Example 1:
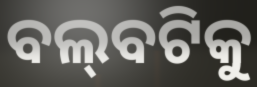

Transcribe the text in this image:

ବଲ୍‌ବଟିକୁ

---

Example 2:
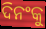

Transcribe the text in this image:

ଦିନଂକୁ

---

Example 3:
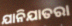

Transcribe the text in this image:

ଯାନିଯାତରା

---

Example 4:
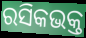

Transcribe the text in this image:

ରସିକଭକ୍ତ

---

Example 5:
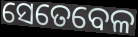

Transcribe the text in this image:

ସେତେବେଳ